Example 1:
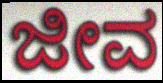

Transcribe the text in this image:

ಜೀವ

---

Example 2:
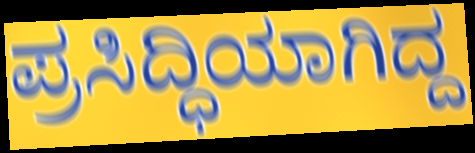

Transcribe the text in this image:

ಪ್ರಸಿದ್ಧಿಯಾಗಿದ್ದ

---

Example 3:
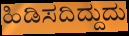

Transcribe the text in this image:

ಹಿಡಿಸದಿದ್ದುದು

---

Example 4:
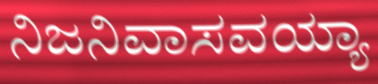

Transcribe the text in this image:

ನಿಜನಿವಾಸವಯ್ಯಾ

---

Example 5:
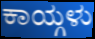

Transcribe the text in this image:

ಕಾಯ್ಗಳು